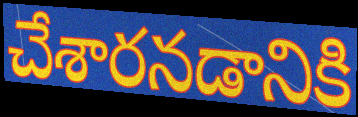
చేశారనడానికి